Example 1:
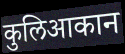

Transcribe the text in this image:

कुलिआकान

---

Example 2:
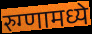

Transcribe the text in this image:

रुग्णामध्ये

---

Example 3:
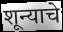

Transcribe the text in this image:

शून्याचे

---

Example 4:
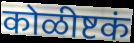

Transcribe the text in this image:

कोळीष्टकं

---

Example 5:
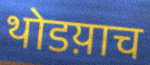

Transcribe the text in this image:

थोडय़ाच